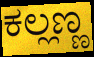
ಕಲ್ಲಣ್ಣ